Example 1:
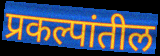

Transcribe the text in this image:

प्रकल्पांतील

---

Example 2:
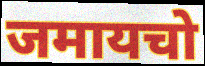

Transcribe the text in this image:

जमायचो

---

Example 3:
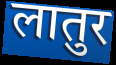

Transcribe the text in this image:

लातुर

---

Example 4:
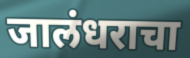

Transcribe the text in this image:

जालंधराचा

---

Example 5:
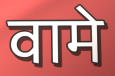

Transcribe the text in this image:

वामे